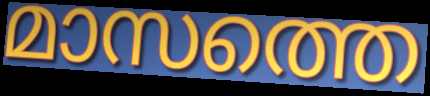
മാസത്തെ